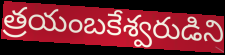
త్రయంబకేశ్వరుడిని